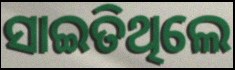
ସାଇତିଥିଲେ